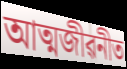
আত্মজীৱনীত